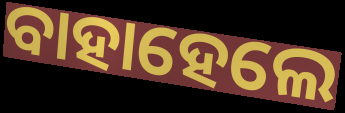
ବାହାହେଲେ